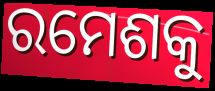
ରମେଶକୁ